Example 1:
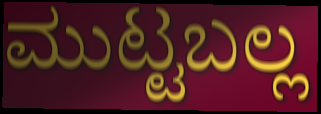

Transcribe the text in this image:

ಮುಟ್ಟಬಲ್ಲ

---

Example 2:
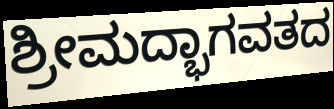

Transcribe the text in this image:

ಶ್ರೀಮದ್ಭಾಗವತದ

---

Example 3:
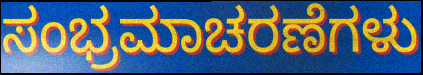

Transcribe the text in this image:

ಸಂಭ್ರಮಾಚರಣೆಗಳು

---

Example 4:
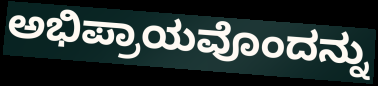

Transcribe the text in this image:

ಅಭಿಪ್ರಾಯವೊಂದನ್ನು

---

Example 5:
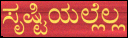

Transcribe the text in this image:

ಸೃಷ್ಟಿಯಲ್ಲೆಲ್ಲ